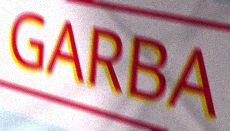
GARBA